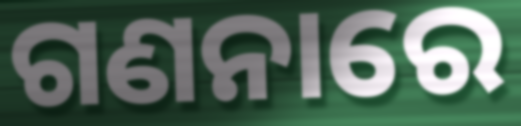
ଗଣନାରେ